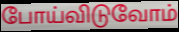
போய்விடுவோம்